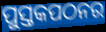
ପୁସ୍ତକପଠନର